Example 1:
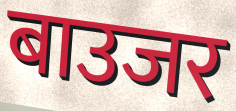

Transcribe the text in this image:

बाउजर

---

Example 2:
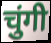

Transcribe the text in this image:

चुंगी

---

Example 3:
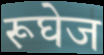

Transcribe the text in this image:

रूघेज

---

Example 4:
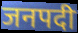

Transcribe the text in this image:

जनपदी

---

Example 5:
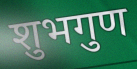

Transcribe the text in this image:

शुभगुण